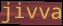
jivva